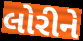
લોરીને